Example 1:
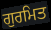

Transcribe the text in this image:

ਗੁਰਮਿਤ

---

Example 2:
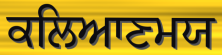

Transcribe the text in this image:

ਕਲਿਆਣਮਯ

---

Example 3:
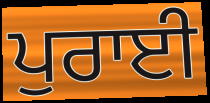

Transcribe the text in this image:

ਪੁਰਾਈ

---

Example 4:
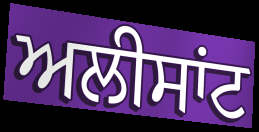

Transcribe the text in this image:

ਅਲੀਸਾਂਟ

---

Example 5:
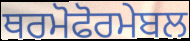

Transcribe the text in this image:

ਥਰਮੋਫੋਰਮੇਬਲ